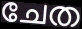
ചേത